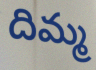
దిమ్మ